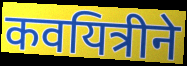
कवयित्रीने